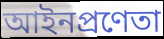
আইনপ্রণেতা